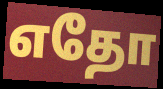
எதோ